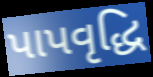
પાપવૃદ્ધિ